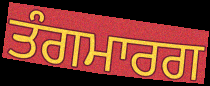
ਤੰਗਮਾਰਗ